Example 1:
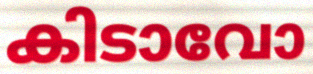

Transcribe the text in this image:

കിടാവോ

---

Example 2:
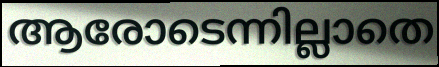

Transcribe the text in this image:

ആരോടെന്നില്ലാതെ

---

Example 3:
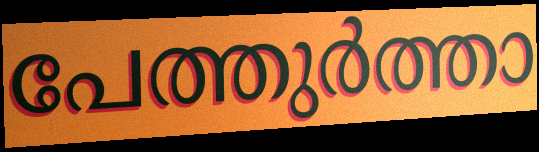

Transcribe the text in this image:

പേത്തുർത്താ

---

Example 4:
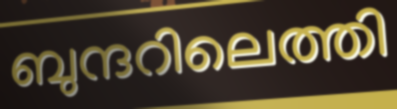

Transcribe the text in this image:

ബുന്ദറിലെത്തി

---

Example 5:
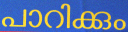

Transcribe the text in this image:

പാറിക്കും